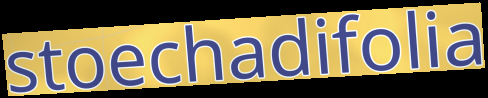
stoechadifolia